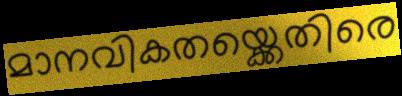
മാനവികതയ്ക്കെതിരെ